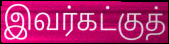
இவர்கட்குத்